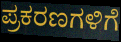
ಪ್ರಕರಣಗಳಿಗೆ